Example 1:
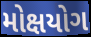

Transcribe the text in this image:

મોક્ષયોગ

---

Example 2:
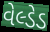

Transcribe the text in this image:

વેલ્ડેડ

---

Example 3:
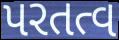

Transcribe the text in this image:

પરતત્વ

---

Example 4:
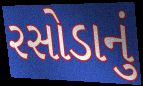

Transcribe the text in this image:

રસોડાનું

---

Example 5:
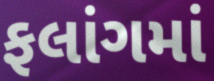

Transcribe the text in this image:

ફલાંગમાં